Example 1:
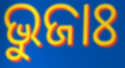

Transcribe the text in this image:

ଭୁଜାଃ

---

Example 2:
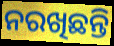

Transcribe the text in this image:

ନରଖିଛନ୍ତି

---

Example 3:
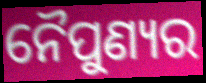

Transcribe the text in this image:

ନୈପୁଣ୍ୟର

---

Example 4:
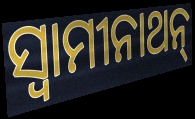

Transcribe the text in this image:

ସ୍ବାମୀନାଥନ୍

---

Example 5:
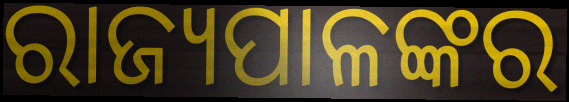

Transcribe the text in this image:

ରାଜ୍ୟପାଳଙ୍କର